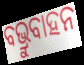
ବଭ୍ରୁବାହନ